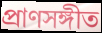
প্রাণসঙ্গীত